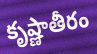
కృష్ణాతీరం